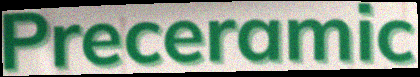
Preceramic